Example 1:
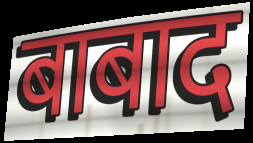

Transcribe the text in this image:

बाबाद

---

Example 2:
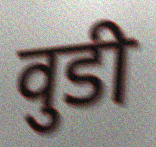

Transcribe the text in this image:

वुडी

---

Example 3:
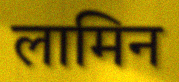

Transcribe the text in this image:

लामिन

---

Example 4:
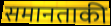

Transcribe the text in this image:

समानताकी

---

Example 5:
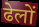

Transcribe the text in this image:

ढेलों